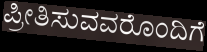
ಪ್ರೀತಿಸುವವರೊಂದಿಗೆ